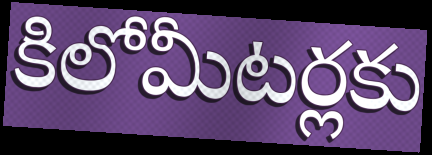
కిలోమీటర్లకు